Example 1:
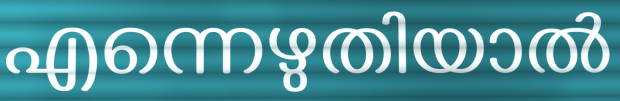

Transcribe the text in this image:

എന്നെഴുതിയാൽ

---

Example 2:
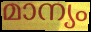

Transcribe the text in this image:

മാന്യം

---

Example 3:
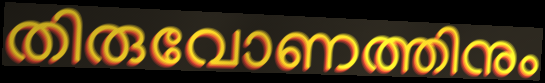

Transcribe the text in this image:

തിരുവോണത്തിനും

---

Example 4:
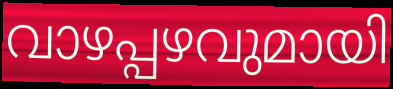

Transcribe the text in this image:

വാഴപ്പഴവുമായി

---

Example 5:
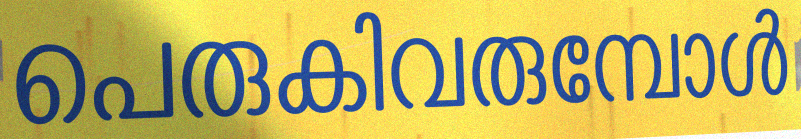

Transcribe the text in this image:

പെരുകിവരുമ്പോൾ